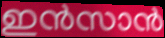
ഇൻസാൻ